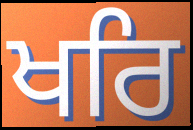
ਖਰਿ